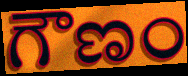
గౌణం